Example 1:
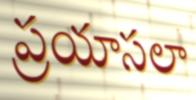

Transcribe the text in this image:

ప్రయాసలా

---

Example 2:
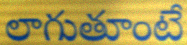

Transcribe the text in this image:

లాగుతూంటే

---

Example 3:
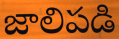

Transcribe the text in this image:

జాలిపడి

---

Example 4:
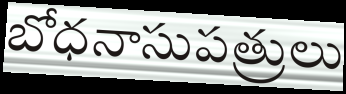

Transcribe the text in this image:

బోధనాసుపత్రులు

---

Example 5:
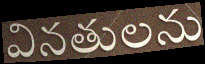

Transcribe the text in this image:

వినతులను